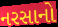
નરસાનો